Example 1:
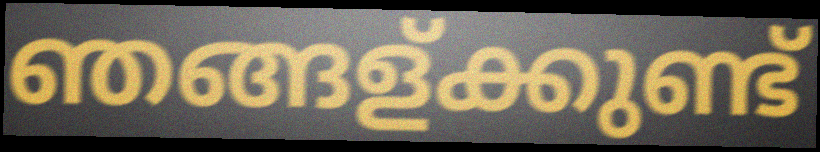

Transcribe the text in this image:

ഞങ്ങള്ക്കുണ്ട്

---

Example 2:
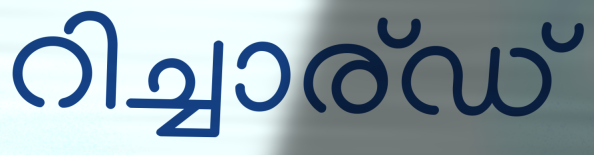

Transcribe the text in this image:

റിച്ചാര്ഡ്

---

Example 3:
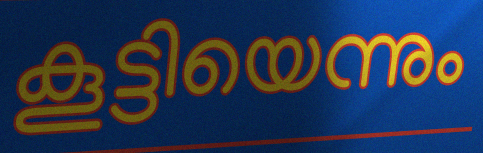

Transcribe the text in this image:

കൂട്ടിയെന്നും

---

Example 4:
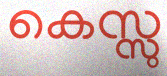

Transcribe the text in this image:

കെസ്സു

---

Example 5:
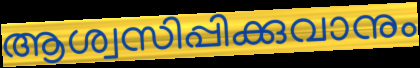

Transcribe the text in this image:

ആശ്വസിപ്പിക്കുവാനും